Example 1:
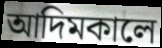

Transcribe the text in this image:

আদিমকালে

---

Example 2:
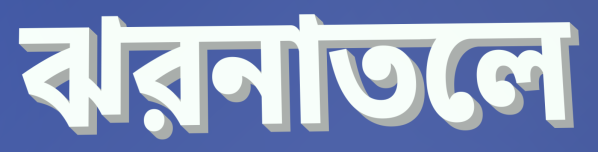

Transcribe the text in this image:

ঝরনাতলে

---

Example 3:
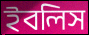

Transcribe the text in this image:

ইবলিস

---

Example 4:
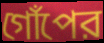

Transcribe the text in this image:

গোঁপের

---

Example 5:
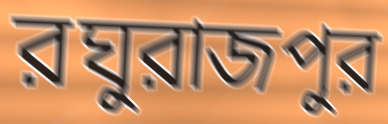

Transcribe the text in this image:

রঘুরাজপুর